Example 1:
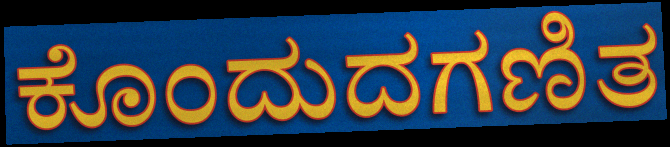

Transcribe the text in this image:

ಕೊಂದುದಗಣಿತ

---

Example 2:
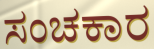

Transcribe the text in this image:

ಸಂಚಕಾರ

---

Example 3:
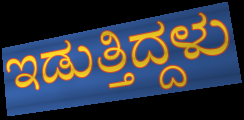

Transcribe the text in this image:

ಇಡುತ್ತಿದ್ದಳು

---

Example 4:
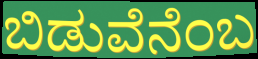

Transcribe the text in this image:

ಬಿಡುವೆನೆಂಬ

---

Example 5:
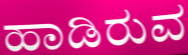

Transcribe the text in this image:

ಹಾಡಿರುವ